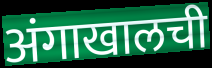
अंगाखालची